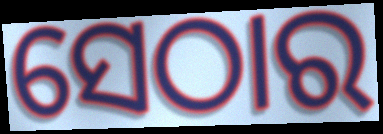
ସେଠାର